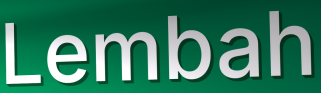
Lembah